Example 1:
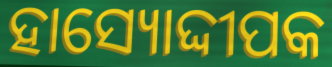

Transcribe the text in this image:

ହାସ୍ୟୋଦ୍ଦୀପକ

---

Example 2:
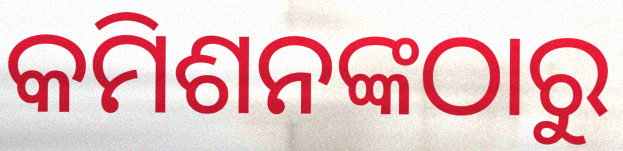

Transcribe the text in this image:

କମିଶନଙ୍କଠାରୁ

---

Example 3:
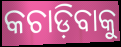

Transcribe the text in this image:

କଚାଡ଼ିବାକୁ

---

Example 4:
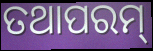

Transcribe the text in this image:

ତଥାପରମ୍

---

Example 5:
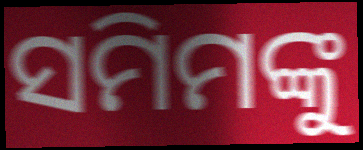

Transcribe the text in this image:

ସମିମଙ୍କୁ